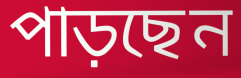
পাড়ছেন